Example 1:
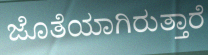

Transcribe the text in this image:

ಜೊತೆಯಾಗಿರುತ್ತಾರೆ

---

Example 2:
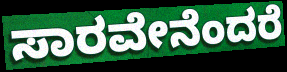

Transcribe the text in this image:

ಸಾರವೇನೆಂದರೆ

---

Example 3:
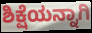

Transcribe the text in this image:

ಶಿಕ್ಷೆಯನ್ನಾಗಿ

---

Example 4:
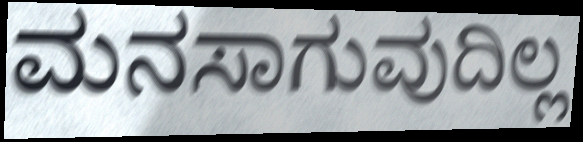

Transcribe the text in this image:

ಮನಸಾಗುವುದಿಲ್ಲ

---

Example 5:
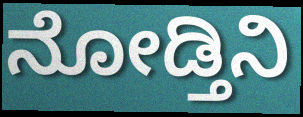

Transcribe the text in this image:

ನೋಡ್ತಿನಿ